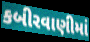
કબીરવાણીમાં